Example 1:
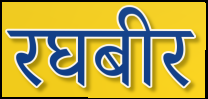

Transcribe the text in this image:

रघबीर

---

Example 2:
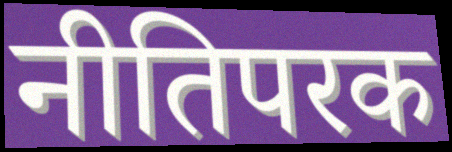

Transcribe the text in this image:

नीतिपरक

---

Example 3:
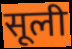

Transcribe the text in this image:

सूली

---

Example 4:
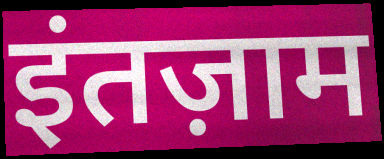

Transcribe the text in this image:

इंतज़ाम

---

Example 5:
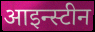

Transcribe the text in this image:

आइन्स्टीन